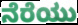
ನೆರೆಯು